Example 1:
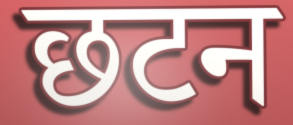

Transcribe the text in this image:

छटन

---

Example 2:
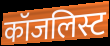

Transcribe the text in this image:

कॉजलिस्ट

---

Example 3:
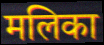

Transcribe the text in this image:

मलिका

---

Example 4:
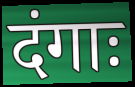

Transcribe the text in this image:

दंगाः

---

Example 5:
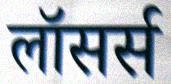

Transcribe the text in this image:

लॉसर्स